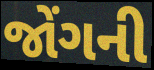
જોંગની